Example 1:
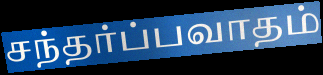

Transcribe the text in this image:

சந்தர்ப்பவாதம்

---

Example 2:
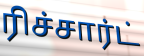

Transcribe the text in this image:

ரிச்சார்ட்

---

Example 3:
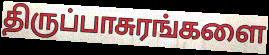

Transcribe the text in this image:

திருப்பாசுரங்களை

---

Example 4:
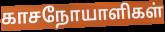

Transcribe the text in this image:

காசநோயாளிகள்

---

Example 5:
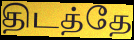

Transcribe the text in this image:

திடத்தே